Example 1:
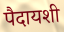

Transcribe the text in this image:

पैदायशी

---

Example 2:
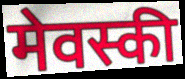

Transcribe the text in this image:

मेवस्की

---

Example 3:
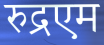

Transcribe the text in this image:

रुद्रएम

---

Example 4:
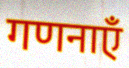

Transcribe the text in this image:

गणनाएँ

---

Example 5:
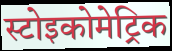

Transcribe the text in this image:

स्टोइकोमेट्रिक